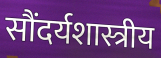
सौंदर्यशास्त्रीय